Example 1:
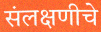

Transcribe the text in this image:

संलक्षणीचे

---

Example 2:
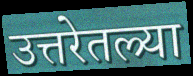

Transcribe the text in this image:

उत्तरेतल्या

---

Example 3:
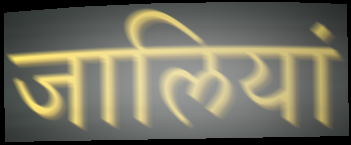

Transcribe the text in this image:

जालियां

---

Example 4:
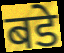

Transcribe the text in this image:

बडे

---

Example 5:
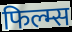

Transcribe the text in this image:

फिल्म्स